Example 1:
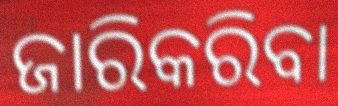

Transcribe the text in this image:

ଜାରିକରିବା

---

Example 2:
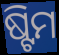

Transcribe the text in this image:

ଷ୍ଟିମ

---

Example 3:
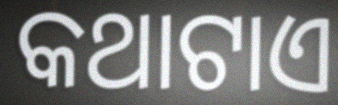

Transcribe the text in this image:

କଥାଟାଏ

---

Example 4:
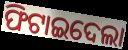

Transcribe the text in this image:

ଫିଟାଇଦେଲା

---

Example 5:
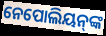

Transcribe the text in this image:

ନେପୋଲିୟନ୍‍ଙ୍କ